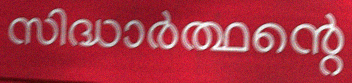
സിദ്ധാർത്ഥന്റെ